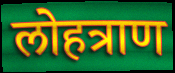
लोहत्राण